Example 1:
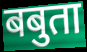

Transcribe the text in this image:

बबुता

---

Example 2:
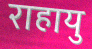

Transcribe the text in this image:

राहायु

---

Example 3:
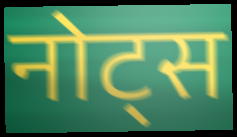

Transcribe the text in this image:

नोट्स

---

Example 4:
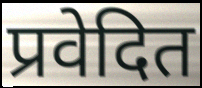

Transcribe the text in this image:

प्रवेदित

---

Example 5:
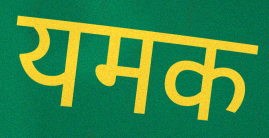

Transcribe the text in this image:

यमक